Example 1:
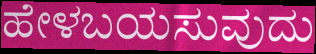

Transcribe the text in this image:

ಹೇಳಬಯಸುವುದು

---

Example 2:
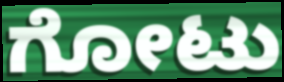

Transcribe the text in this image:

ಗೋಟು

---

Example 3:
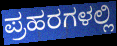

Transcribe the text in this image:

ಪ್ರಹರಗಳಲ್ಲಿ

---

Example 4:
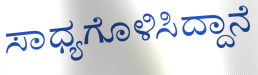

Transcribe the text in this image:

ಸಾಧ್ಯಗೊಳಿಸಿದ್ದಾನೆ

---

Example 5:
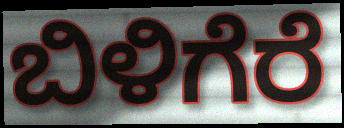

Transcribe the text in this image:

ಬಿಳಿಗೆರೆ